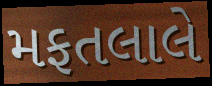
મફતલાલે